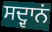
ਸਦ੍ਦਾਨਂ